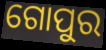
ଗୋପୁର